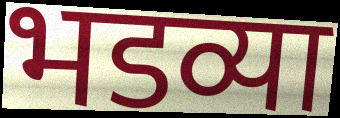
भडव्या